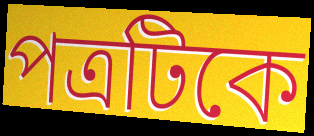
পত্রটিকে